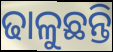
ଢାଳୁଛନ୍ତି